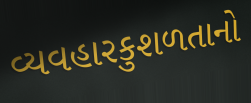
વ્યવહારકુશળતાનો